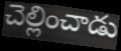
చెల్లించాడు